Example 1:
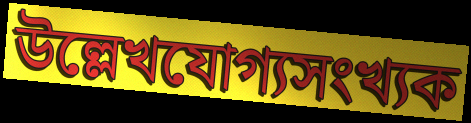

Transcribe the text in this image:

উল্লেখযোগ্যসংখ্যক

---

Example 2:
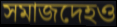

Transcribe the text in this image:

সমাজদেহও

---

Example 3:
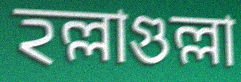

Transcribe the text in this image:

হল্লাগুল্লা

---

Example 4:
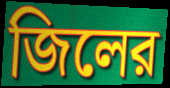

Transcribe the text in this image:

জিলের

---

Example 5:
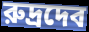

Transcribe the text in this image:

রুদ্রদেব